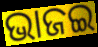
ଭାଜଇ